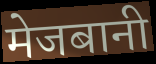
मेजबानी